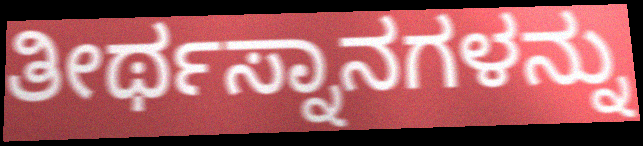
ತೀರ್ಥಸ್ನಾನಗಳನ್ನು